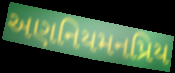
અણનિયમનપ્રિય